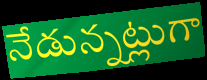
నేడున్నట్లుగా